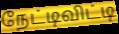
நேட்டிவிட்டி